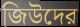
জিউদের